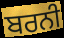
ਬਰਨੀ